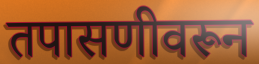
तपासणीवरून